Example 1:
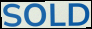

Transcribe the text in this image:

SOLD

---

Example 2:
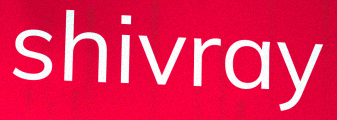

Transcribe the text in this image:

shivray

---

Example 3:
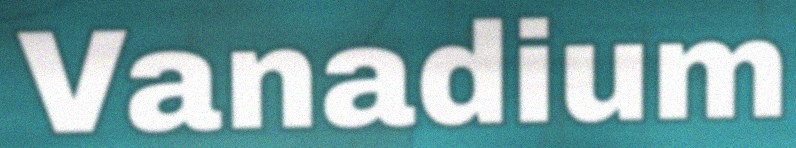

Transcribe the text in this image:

Vanadium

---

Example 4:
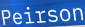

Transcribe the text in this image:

Peirson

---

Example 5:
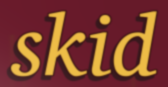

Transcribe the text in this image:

skid